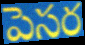
పెసర